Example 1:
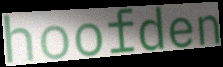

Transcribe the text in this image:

hoofden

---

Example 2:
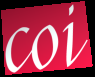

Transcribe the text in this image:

coi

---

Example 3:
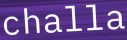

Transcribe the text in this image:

challa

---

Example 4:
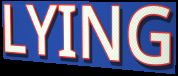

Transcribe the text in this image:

LYING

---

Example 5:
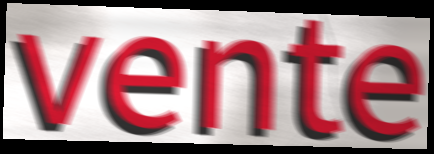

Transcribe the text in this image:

vente